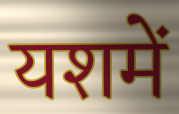
यशमें